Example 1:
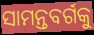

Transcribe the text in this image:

ସାମନ୍ତବର୍ଗକୁ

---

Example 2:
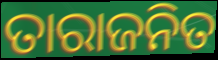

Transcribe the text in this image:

ତାରାଜନିତ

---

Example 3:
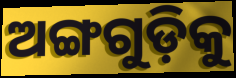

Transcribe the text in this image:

ଅଙ୍ଗଗୁଡ଼ିକୁ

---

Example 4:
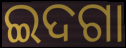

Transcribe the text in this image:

ଇଦଗା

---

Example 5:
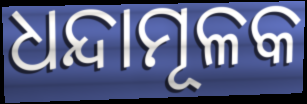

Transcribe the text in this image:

ଧନ୍ଦାମୂଳକ